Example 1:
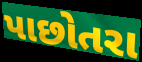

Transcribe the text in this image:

પાછોતરા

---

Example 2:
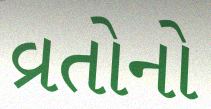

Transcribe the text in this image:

વ્રતોનો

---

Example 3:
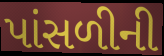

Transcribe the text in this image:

પાંસળીની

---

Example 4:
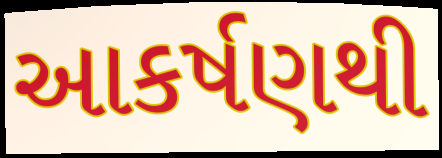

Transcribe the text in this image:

આકર્ષણથી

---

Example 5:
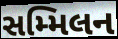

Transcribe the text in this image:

સમ્મિલન